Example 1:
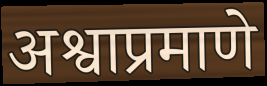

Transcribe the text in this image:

अश्वाप्रमाणे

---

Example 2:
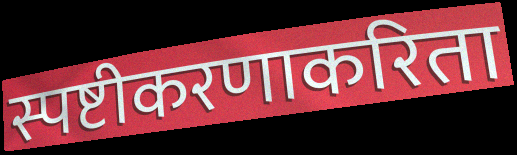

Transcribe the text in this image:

स्पष्टीकरणाकरिता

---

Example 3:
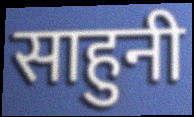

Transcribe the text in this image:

साहुनी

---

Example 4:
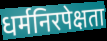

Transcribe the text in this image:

धर्मनिरपेक्षता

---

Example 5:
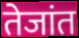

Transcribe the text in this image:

तेजांत